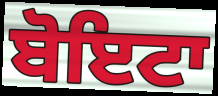
ਬੋਇਟਾ